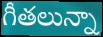
గీతలున్నా